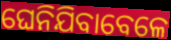
ଘେନିଯିବାବେଳେ